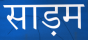
साड़म